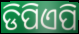
ଡିପିଏପି